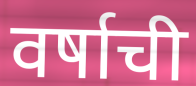
वर्षाची